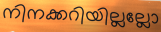
നിനക്കറിയില്ലല്ലോ